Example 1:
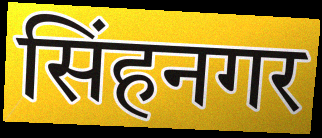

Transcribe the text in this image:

सिंहनगर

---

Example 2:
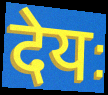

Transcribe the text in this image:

देयः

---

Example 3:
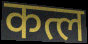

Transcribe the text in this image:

कत्‍ल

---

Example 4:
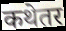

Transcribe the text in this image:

कथेतर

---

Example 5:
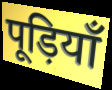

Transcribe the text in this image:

पूड़ियाँ